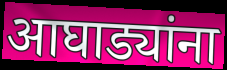
आघाड्यांना